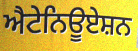
ਐਟੇਨਿਊਏਸ਼ਨ